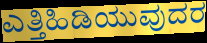
ಎತ್ತಿಹಿಡಿಯುವುದರ